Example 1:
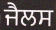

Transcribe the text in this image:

ਜੈਲਸ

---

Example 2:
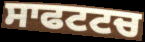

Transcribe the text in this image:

ਸਾਫਟਟਚ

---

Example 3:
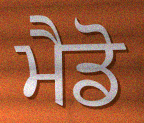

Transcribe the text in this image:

ਮੈਡੋ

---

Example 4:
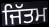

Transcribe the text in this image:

ਜਿੱਤਮ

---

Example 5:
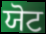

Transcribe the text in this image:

ਯੋਟ